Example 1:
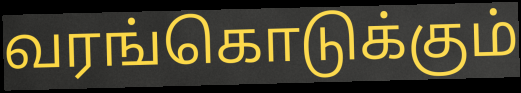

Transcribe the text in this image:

வரங்கொடுக்கும்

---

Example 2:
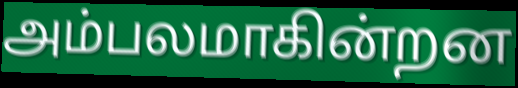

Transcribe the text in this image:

அம்பலமாகின்றன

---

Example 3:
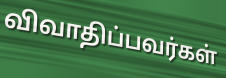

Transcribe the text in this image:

விவாதிப்பவர்கள்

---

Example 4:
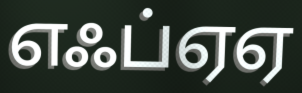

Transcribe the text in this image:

எஃப்ஏஏ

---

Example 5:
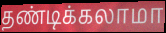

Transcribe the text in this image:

தண்டிக்கலாமா